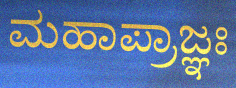
ಮಹಾಪ್ರಾಜ್ಞಃ